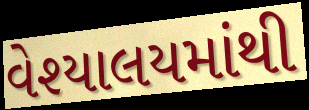
વેશ્યાલયમાંથી